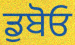
ਡੁਬੋਓ